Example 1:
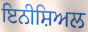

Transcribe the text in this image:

ਇਨੀਸ਼ਿਅਲ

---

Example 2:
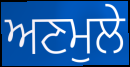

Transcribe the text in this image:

ਅਣਮੁਲੇ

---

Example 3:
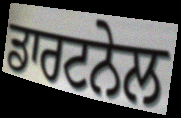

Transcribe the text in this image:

ਡਾਰਟਨੇਲ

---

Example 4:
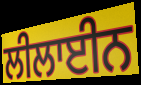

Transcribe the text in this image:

ਲੀਲਾਈਨ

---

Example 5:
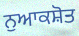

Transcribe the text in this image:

ਨੁਆਕਸ਼ੋਤ